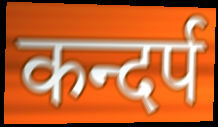
कन्दर्प